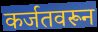
कर्जतवरून